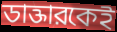
ডাক্তারকেই